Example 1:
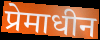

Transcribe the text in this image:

प्रेमाधीन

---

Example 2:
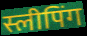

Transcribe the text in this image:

स्लीपिंग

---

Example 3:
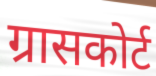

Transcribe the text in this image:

ग्रासकोर्ट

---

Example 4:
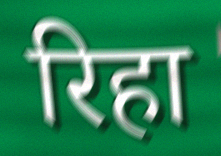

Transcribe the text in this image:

रिहा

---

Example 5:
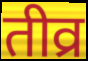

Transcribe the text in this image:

तीव्र